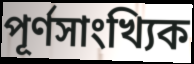
পূর্ণসাংখ্যিক